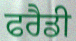
ਫਰੈਡੀ